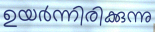
ഉയർന്നിരിക്കുന്നു